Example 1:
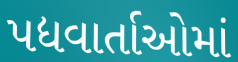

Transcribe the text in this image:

પદ્યવાર્તાઓમાં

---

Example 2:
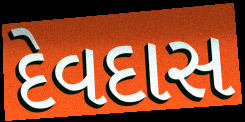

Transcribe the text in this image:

દેવદાસ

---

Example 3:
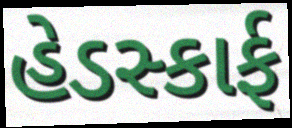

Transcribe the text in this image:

હેડસ્કાર્ફ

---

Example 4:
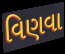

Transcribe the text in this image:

વિણવા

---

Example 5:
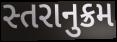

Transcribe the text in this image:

સ્તરાનુક્રમ